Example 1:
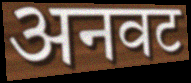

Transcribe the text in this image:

अनवट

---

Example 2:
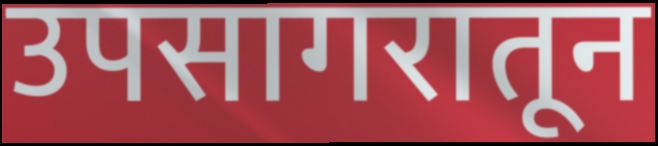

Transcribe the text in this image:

उपसागरातून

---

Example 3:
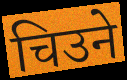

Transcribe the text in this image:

चिउने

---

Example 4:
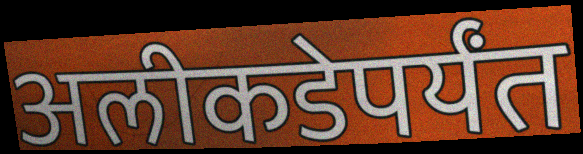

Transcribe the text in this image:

अलीकडेपर्यंत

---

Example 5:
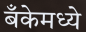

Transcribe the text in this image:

बँकेमध्ये